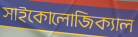
সাইকোলোজিক্যাল